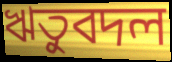
ঋতুবদল